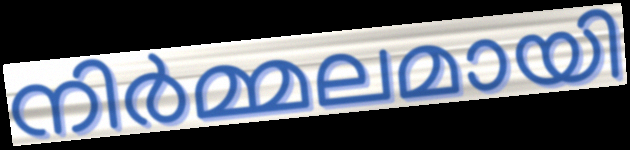
നിർമ്മലമായി